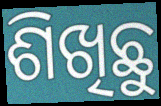
ଶିଖିଛୁ